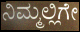
ನಿಮ್ಮಲ್ಲಿಗೇ